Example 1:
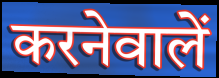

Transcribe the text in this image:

करनेवालें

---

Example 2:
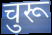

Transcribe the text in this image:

चुरू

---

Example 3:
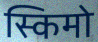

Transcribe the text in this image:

स्किमो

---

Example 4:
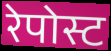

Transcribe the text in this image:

रेपोस्ट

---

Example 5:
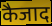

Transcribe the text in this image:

कैजाद